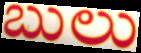
బులు